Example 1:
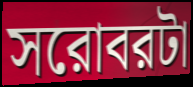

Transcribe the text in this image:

সরোবরটা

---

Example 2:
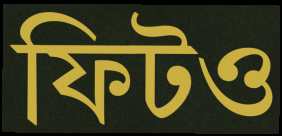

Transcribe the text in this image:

ফিটও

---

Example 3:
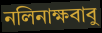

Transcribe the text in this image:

নলিনাক্ষবাবু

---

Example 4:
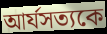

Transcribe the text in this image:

আর্যসত্যকে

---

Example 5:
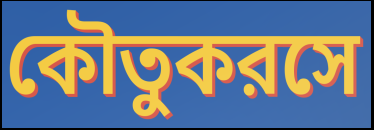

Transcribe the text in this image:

কৌতুকরসে